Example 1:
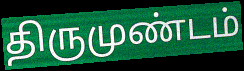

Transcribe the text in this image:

திருமுண்டம்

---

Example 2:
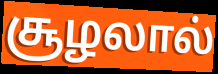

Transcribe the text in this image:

சூழலால்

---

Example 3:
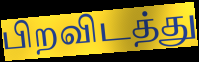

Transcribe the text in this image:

பிறவிடத்து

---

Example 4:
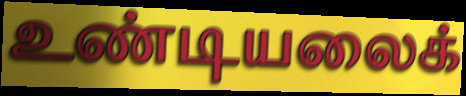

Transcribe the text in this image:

உண்டியலைக்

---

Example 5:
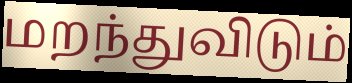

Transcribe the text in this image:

மறந்துவிடும்